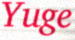
Yuge